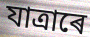
যাত্ৰাৰে